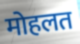
मोहलत